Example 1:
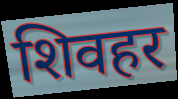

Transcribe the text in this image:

शिवहर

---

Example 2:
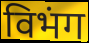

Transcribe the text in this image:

विभंग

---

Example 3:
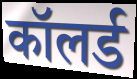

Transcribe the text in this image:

कॉलर्ड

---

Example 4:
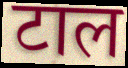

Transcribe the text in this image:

टाल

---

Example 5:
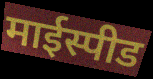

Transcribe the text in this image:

माईस्पीड